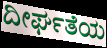
ದೀರ್ಘತೆಯ